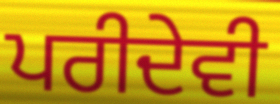
ਪਰੀਦੇਵੀ